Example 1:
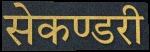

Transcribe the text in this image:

सेकण्‍डरी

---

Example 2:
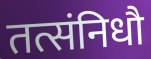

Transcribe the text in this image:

तत्संनिधौ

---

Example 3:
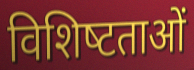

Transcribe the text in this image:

विशिष्‍टताओं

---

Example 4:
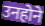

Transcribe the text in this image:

उनहोने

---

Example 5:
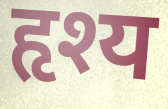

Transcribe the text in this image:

हृश्य